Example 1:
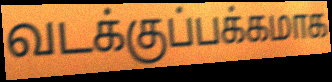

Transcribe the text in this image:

வடக்குப்பக்கமாக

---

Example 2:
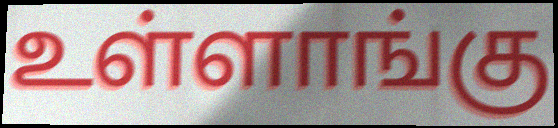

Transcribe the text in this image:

உள்ளாங்கு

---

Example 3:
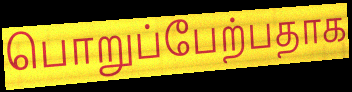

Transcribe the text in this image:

பொறுப்பேற்பதாக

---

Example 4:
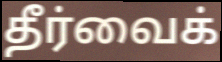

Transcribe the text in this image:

தீர்வைக்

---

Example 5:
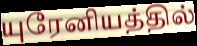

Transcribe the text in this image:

யுரேனியத்தில்